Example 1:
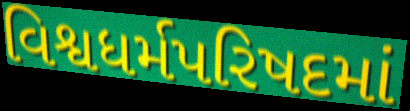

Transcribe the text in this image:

વિશ્વધર્મપરિષદમાં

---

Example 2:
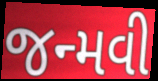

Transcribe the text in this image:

જન્મવી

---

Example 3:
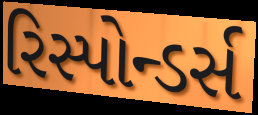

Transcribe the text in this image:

રિસ્પોન્ડર્સ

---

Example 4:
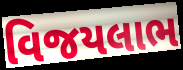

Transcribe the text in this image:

વિજયલાભ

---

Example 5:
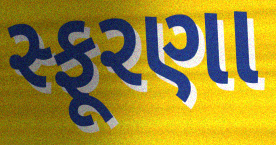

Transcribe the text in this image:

સ્ફૂરણા